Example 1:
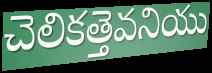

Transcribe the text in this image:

చెలికత్తెవనియు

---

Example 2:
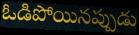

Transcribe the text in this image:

ఓడిపోయినప్పుడు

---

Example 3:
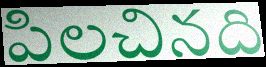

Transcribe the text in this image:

పిలచినది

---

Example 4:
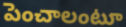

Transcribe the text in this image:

పెంచాలంటూ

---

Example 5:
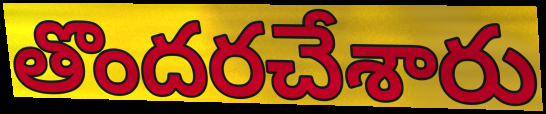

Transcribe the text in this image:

తొందరచేశారు